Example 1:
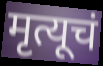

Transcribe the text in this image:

मृत्यूचं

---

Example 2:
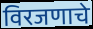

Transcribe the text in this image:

विरजणाचे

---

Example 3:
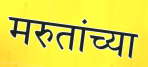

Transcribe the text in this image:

मरुतांच्या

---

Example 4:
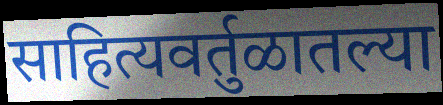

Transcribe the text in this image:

साहित्यवर्तुळातल्या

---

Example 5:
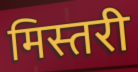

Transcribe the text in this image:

मिस्तरी